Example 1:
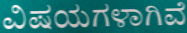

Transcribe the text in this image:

ವಿಷಯಗಳಾಗಿವೆ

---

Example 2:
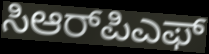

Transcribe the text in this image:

ಸಿಆರ್‌ಪಿಎಫ್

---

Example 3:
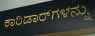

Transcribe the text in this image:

ಕಾರಿಡಾರ್‌ಗಳನ್ನು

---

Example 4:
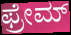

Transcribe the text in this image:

ಫ್ರೇಮ್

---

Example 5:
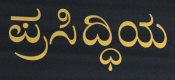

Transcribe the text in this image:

ಪ್ರಸಿದ್ಧಿಯ